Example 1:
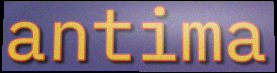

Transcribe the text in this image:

antima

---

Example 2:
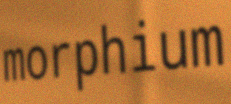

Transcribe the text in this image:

morphium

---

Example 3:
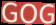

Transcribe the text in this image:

GOG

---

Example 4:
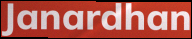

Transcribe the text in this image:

Janardhan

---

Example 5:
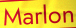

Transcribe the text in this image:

Marlon